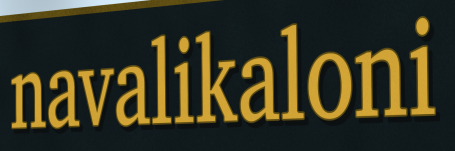
navalikaloni